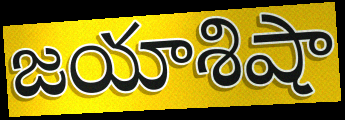
జయాశిషా